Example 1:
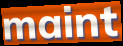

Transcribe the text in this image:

maint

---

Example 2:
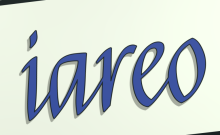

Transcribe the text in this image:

iareo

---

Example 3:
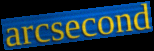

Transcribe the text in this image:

arcsecond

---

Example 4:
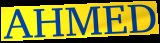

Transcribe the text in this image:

AHMED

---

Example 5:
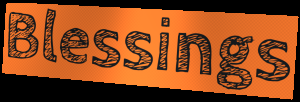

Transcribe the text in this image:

Blessings